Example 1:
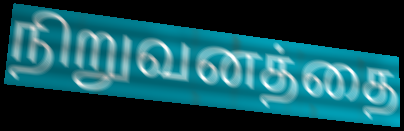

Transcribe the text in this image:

நிறுவனத்தை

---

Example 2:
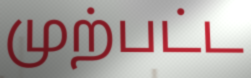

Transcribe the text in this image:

முற்பட்ட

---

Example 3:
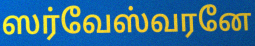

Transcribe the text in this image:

ஸர்வேஸ்வரனே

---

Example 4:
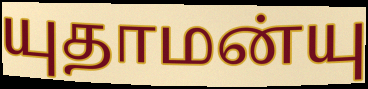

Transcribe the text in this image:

யுதாமன்யு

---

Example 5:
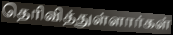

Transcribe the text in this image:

தெரிவித்துள்ளார்கள்